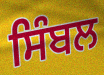
ਸਿੰਬਲ